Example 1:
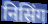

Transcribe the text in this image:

निसिंग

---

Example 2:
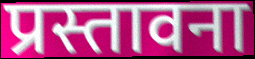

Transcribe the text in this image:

प्रस्‍तावना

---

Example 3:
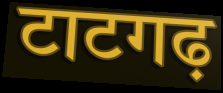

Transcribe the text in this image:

टाटगढ़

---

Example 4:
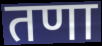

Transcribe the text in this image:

तणा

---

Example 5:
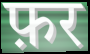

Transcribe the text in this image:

फ़र